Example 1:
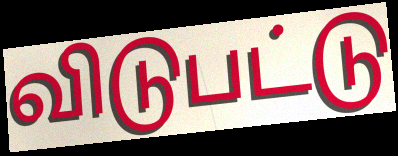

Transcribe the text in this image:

விடுபட்டு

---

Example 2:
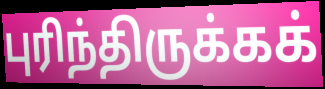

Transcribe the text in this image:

புரிந்திருக்கக்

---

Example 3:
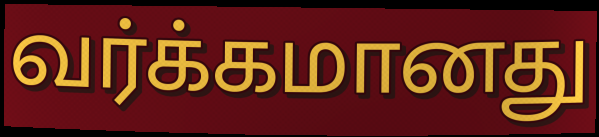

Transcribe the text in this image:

வர்க்கமானது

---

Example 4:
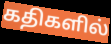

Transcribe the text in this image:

கதிகளில்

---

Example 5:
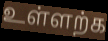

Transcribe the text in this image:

உள்ளற்க